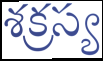
శక్రస్య